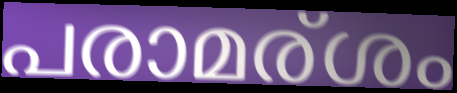
പരാമര്ശം